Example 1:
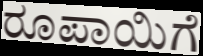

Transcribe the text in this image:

ರೂಪಾಯಿಗೆ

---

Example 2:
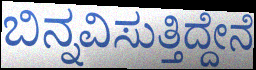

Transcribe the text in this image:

ಬಿನ್ನವಿಸುತ್ತಿದ್ದೇನೆ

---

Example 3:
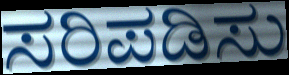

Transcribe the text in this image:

ಸರಿಪಡಿಸು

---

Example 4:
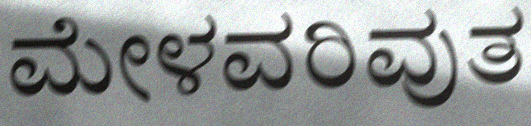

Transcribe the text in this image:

ಮೇಳವರಿವುತ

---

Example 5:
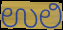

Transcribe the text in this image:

ಉಲಿ